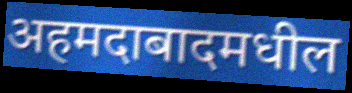
अहमदाबादमधील